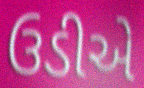
ઉડીએ